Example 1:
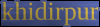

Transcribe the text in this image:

khidirpur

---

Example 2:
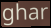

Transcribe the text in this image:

ghar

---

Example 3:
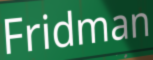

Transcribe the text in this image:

Fridman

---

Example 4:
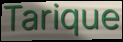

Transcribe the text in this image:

Tarique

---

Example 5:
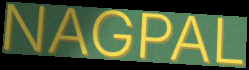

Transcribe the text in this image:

NAGPAL